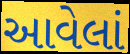
આવેલાં